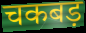
चकबड़